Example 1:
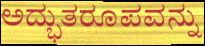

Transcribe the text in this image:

ಅದ್ಭುತರೂಪವನ್ನು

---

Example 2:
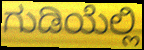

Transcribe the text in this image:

ಗುಡಿಯೆಲ್ಲಿ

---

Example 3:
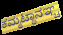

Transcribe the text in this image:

ಕಮ್ಮಟ್ಠಾನಞ್ಚ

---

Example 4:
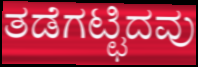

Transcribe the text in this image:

ತಡೆಗಟ್ಟಿದವು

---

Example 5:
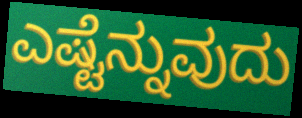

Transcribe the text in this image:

ಎಷ್ಟೆನ್ನುವುದು